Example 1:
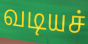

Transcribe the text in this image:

வடியச்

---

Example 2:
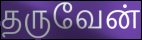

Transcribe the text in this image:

தருவேன்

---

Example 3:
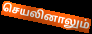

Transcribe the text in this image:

செயலினாலும்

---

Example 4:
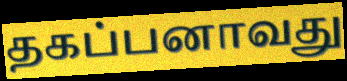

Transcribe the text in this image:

தகப்பனாவது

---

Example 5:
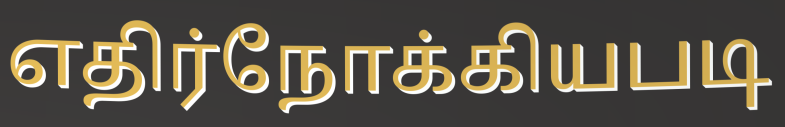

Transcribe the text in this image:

எதிர்நோக்கியபடி